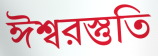
ঈশ্বরস্তুতি